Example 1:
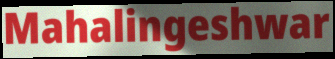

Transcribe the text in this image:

Mahalingeshwar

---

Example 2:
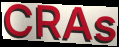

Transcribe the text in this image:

CRAs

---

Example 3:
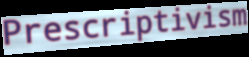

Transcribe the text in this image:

Prescriptivism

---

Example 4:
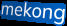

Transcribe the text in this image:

mekong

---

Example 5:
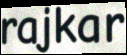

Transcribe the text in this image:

rajkar